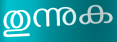
തുന്നുക